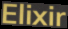
Elixir